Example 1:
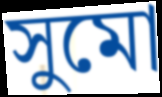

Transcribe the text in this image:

সুমো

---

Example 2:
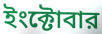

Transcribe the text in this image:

ইংক্টোবার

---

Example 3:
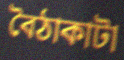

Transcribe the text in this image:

বৈঠাকাটা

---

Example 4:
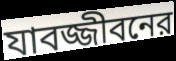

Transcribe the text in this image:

যাবজ্জীবনের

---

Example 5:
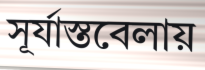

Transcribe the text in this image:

সূর্যাস্তবেলায়